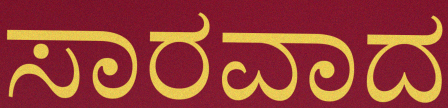
ಸಾರವಾದ